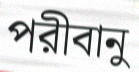
পরীবানু